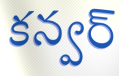
కన్వర్